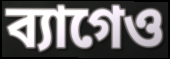
ব্যাগেও